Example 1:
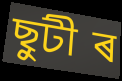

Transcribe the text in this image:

ছুটীৰ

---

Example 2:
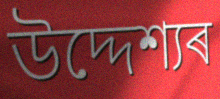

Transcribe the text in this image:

উদ্দেশ্যৰ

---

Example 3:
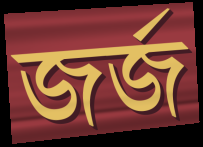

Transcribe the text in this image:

জৰ্জ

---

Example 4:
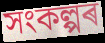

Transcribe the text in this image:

সংকল্পৰ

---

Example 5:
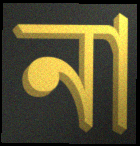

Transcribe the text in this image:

না